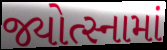
જ્યોત્સ્નામાં